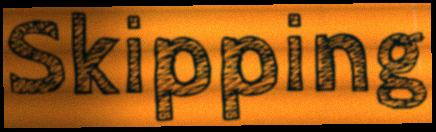
Skipping